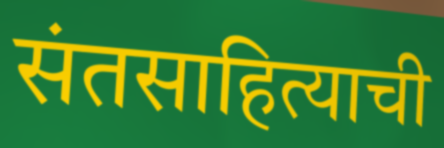
संतसाहित्याची